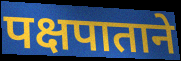
पक्षपाताने